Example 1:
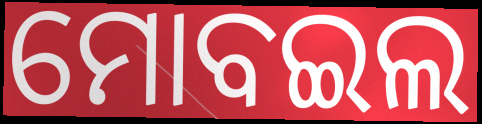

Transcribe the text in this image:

ମୋବଇଲ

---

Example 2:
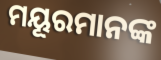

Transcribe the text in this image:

ମୟୂରମାନଙ୍କ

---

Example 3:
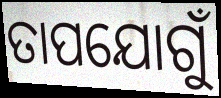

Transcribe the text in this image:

ତାପଯୋଗୁଁ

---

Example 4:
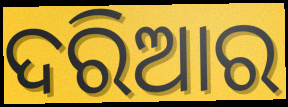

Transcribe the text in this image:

ଦରିଆର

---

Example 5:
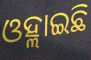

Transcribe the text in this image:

ଓହ୍ଲାଇଛି